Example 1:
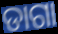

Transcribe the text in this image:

ଡାଗା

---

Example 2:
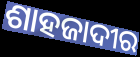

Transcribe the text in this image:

ଶାହଜାଦୀର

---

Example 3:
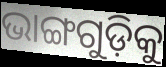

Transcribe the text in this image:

ଭାଙ୍ଗଗୁଡ଼ିକୁ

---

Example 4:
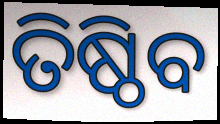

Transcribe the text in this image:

ତିଷ୍ଠିବ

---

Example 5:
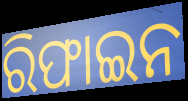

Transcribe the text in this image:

ରିଫାଇନ